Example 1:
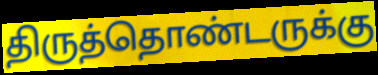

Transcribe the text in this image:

திருத்தொண்டருக்கு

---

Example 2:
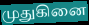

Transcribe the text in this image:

முதுகினை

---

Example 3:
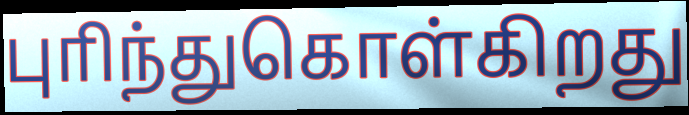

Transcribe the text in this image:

புரிந்துகொள்கிறது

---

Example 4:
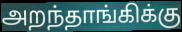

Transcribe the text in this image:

அறந்தாங்கிக்கு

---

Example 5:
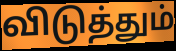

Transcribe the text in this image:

விடுத்தும்